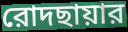
রোদছায়ার